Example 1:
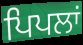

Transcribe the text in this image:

ਪਿਪਲਾਂ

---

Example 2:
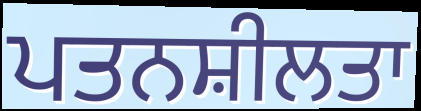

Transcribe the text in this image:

ਪਤਨਸ਼ੀਲਤਾ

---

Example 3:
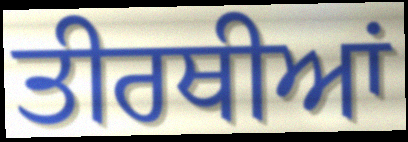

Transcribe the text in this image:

ਤੀਰਥੀਆਂ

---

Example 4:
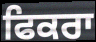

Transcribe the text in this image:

ਫਿਕਰਾ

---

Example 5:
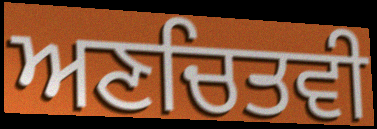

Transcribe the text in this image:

ਅਣਚਿਤਵੀ